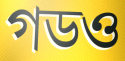
গডও